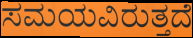
ಸಮಯವಿರುತ್ತದೆ